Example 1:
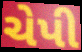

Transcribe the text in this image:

ચેપી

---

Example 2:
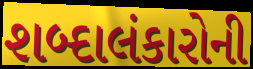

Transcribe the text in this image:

શબ્દાલંકારોની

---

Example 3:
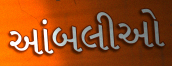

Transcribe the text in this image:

આંબલીઓ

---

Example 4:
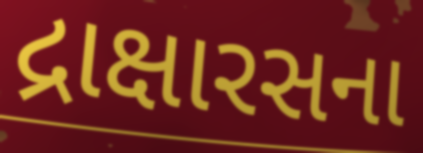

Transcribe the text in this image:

દ્રાક્ષારસના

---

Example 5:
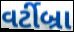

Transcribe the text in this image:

વર્ટીબ્રા